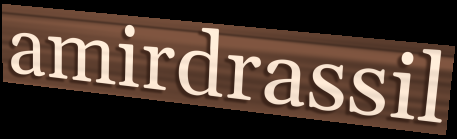
amirdrassil